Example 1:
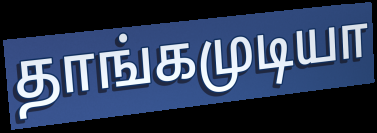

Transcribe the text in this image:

தாங்கமுடியா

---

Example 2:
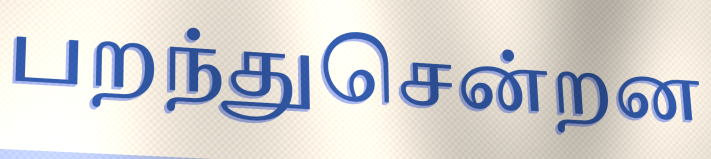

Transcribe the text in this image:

பறந்துசென்றன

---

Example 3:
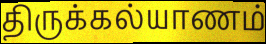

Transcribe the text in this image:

திருக்கல்யாணம்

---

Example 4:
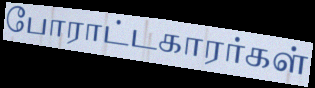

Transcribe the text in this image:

போராட்டகாரர்கள்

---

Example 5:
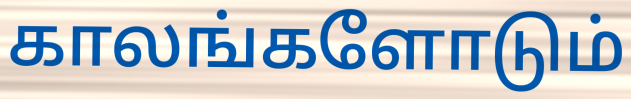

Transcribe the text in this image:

காலங்களோடும்